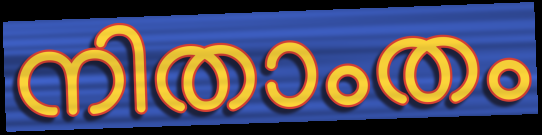
നിതാംതം